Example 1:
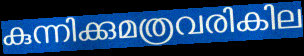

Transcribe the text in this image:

കുന്നിക്കുമത്രവരികില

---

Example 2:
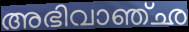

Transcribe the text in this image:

അഭിവാഞ്ഛ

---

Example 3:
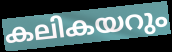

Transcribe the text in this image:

കലികയറും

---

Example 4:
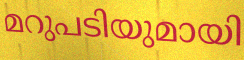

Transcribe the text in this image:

മറുപടിയുമായി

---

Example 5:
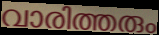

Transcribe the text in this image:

വാരിത്തരും